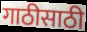
गाठीसाठी